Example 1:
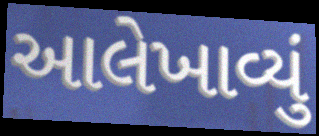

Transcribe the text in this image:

આલેખાવ્યું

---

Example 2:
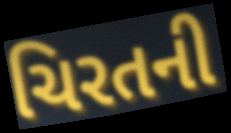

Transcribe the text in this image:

ચિરતની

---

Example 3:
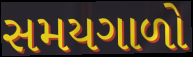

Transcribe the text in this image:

સમયગાળો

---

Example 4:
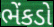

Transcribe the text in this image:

ભેંકડો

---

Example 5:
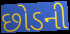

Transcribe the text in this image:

છોડની